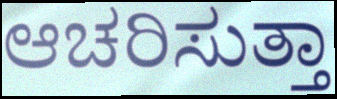
ಆಚರಿಸುತ್ತಾ